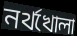
নর্থখোলা